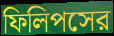
ফিলিপসের